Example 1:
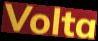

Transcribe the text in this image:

Volta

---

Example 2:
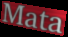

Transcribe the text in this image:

Mata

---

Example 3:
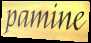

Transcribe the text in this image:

pamine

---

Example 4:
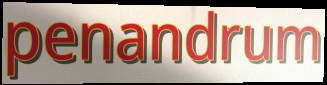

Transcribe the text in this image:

penandrum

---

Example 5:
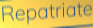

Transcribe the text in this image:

Repatriate